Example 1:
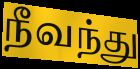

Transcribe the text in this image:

நீவந்து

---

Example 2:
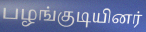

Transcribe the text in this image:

பழங்குடியினர்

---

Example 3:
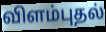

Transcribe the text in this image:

விளம்புதல்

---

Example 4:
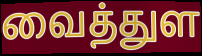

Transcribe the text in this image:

வைத்துள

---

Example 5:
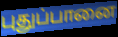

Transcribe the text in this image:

புதுப்பானை